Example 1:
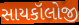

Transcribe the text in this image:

સાયકૉલોજી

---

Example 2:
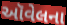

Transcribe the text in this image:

ઑવેલના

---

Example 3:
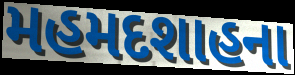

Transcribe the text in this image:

મહમદશાહના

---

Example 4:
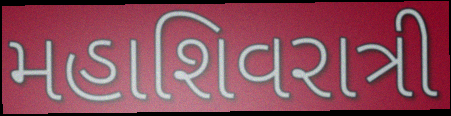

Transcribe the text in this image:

મહાશિવરાત્રી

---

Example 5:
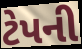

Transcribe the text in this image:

ટેપની